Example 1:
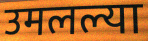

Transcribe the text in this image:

उमलल्या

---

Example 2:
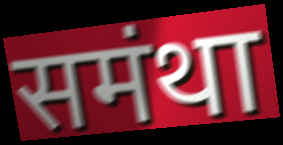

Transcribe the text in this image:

समंथा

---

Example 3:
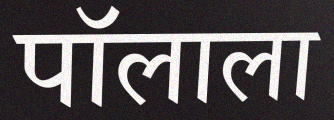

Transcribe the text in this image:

पॉलाला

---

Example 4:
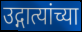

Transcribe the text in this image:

उद्गात्यांच्या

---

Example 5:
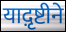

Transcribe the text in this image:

याद़ृष्टीने